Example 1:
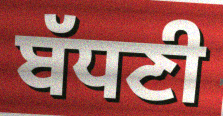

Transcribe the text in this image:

ਬੱਧਣੀ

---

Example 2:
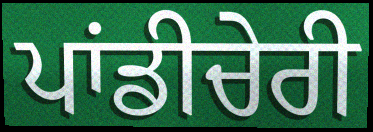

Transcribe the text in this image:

ਪਾਂਡੀਚੇਰੀ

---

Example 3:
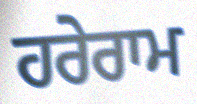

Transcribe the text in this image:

ਹਰੇਰਾਮ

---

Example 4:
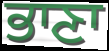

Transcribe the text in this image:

ਭਾਣਾ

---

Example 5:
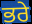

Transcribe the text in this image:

ਭਰੇ